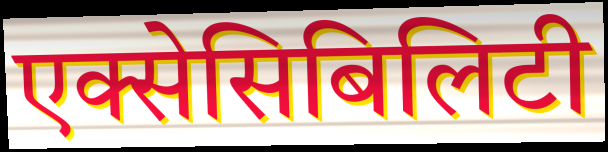
एक्सेसिबिलिटी